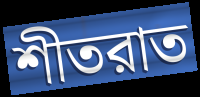
শীতরাত